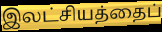
இலட்சியத்தைப்